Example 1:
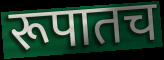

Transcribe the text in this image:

रूपातच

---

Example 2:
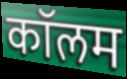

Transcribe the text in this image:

कॉलम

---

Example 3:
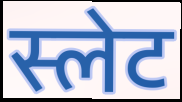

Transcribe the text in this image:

स्लेट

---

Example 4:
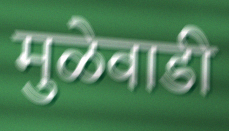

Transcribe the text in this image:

मुळेवाडी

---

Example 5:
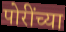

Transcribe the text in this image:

पोरींच्या